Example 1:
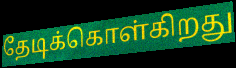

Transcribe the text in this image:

தேடிக்கொள்கிறது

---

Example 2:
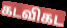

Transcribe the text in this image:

கடவிகட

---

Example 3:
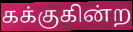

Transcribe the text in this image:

கக்குகின்ற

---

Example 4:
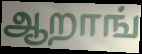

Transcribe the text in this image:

ஆறாங்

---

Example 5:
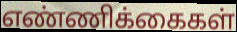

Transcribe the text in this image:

எண்ணிக்கைகள்